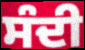
ਸੰਦੀ